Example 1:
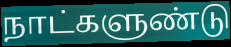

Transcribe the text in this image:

நாட்களுண்டு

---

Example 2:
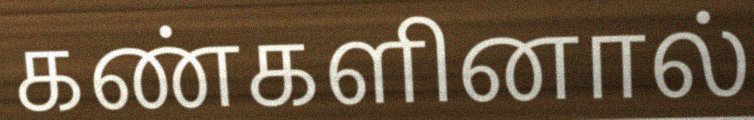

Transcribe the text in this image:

கண்களினால்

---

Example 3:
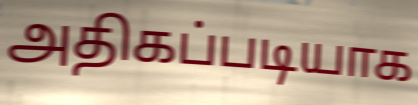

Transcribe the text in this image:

அதிகப்படியாக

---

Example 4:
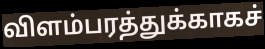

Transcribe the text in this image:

விளம்பரத்துக்காகச்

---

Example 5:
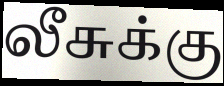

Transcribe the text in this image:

லீசுக்கு